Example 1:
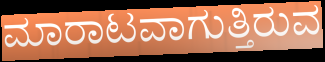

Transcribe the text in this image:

ಮಾರಾಟವಾಗುತ್ತಿರುವ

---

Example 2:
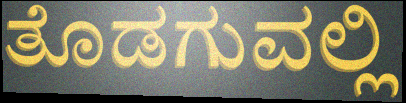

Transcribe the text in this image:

ತೊಡಗುವಲ್ಲಿ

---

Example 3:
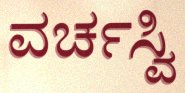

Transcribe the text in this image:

ವರ್ಚಸ್ವಿ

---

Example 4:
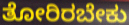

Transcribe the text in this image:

ತೋರಿರಬೇಕು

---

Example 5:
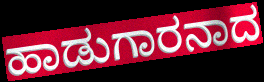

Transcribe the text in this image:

ಹಾಡುಗಾರನಾದ